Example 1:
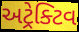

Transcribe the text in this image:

અટ્રેક્ટિવ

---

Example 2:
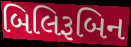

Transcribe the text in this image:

બિલિરૂબિન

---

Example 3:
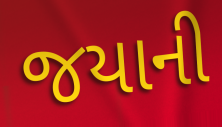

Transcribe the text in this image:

જયાની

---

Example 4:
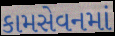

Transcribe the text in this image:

કામસેવનમાં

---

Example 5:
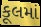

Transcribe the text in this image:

કૂલમાં